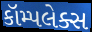
કૉમ્પલેક્સ